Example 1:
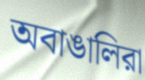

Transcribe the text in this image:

অবাঙালিরা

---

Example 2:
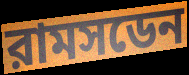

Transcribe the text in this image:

রামসডেন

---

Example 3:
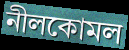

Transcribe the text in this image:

নীলকোমল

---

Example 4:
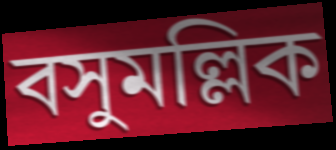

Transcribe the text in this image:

বসুমল্লিক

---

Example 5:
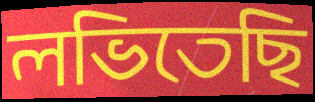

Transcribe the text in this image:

লভিতেছি